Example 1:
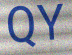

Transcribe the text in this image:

QY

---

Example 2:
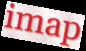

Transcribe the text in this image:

imap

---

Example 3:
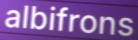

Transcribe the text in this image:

albifrons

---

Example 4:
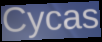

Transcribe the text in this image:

Cycas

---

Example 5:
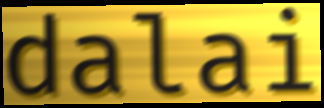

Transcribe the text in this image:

dalai